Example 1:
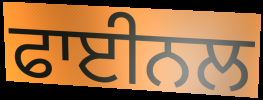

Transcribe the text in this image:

ਫਾਈਨਲ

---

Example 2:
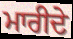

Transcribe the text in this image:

ਮਾਰੀਦੇ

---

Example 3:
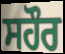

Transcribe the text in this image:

ਸਹੌਰ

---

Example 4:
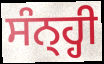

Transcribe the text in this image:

ਸੰਨ੍ਹ੍ਹੀ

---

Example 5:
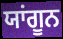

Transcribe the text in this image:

ਯਾਂਗੂਨ